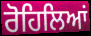
ਰੋਹਿਲਿਆਂ